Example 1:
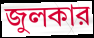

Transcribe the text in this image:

জুলকার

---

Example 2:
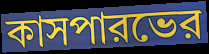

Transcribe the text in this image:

কাসপারভের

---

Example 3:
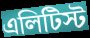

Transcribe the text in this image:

এলিটিস্ট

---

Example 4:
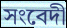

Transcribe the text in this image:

সংবেদী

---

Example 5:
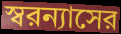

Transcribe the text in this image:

স্বরন্যাসের